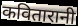
कवितारानी